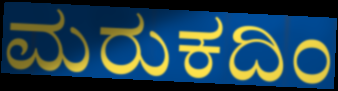
ಮರುಕದಿಂ